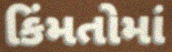
કિંમતોમાં